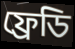
ফ্রেডি